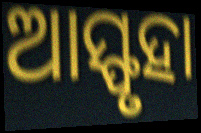
ଆସ୍ଫୃହା